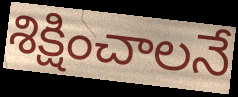
శిక్షించాలనే